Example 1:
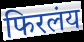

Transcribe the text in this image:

फिरलंय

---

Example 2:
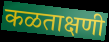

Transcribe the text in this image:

कळताक्षणी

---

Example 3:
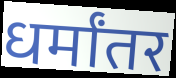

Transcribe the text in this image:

धर्मांतर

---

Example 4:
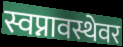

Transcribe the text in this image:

स्वप्नावस्थेवर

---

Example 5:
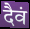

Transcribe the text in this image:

दैवं